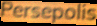
Persepolis